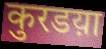
कुरडय़ा